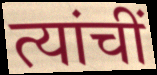
त्यांचीं